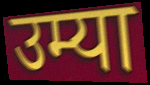
उम्या